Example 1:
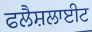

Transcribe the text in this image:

ਫਲੈਸ਼ਲਾਈਟ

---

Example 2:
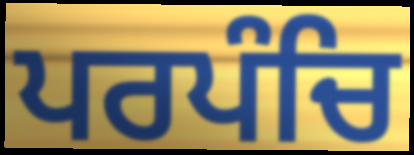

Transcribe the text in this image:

ਪਰਪੰਚਿ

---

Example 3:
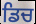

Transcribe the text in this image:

ਡਿਚ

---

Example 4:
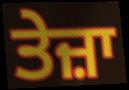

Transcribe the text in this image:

ਤੇਜ਼ਾ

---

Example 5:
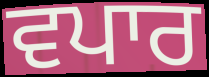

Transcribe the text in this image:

ਵਪਾਰ